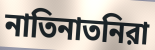
নাতিনাতনিরা